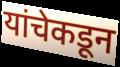
यांचेकडून